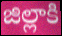
జిల్లాకి